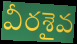
వీరశైవ